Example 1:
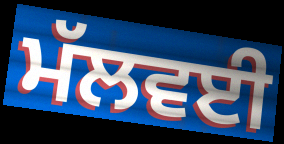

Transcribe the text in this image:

ਮੱਲਵਈ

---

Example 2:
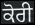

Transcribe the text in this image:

ਕੋਰੀ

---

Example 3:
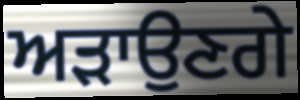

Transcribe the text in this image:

ਅੜਾਉਣਗੇ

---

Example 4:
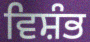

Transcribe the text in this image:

ਵਿਸ਼ੰਭ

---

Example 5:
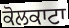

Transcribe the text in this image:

ਕੋਲਕਾਟਾ